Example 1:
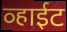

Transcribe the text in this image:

व्हाईट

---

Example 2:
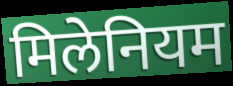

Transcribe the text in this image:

मिलेनियम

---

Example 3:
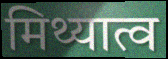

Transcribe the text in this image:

मिथ्यात्व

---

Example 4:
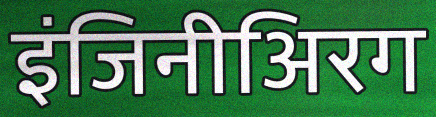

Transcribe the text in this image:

इंजिनीअिरग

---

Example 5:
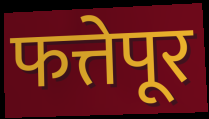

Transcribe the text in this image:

फत्तेपूर